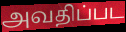
அவதிப்பட